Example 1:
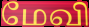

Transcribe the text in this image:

மேவி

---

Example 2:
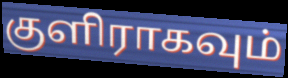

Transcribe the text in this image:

குளிராகவும்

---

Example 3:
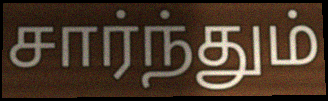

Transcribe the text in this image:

சார்ந்தும்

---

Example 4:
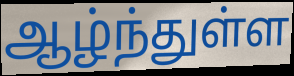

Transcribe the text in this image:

ஆழ்ந்துள்ள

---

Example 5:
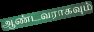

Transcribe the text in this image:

ஆண்டவராகவும்